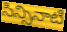
సిన్సినాటి